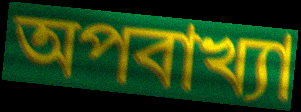
অপবাখ্যা